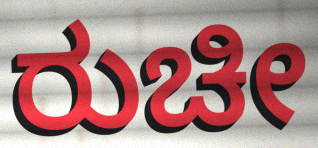
ರುಚೀ